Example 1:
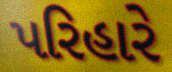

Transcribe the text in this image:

પરિહારે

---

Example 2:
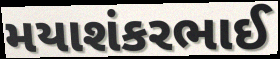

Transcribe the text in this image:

મયાશંકરભાઈ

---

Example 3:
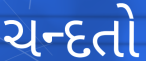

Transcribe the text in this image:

ચન્દતો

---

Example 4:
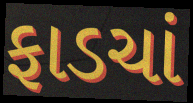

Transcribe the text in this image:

ફાડચાં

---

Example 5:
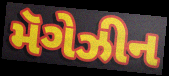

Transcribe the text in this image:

મૅગેઝીન